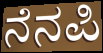
ನೆನಪಿ